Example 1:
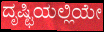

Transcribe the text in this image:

ದೃಷ್ಟಿಯಲ್ಲಿಯೇ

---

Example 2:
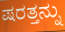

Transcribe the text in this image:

ಷರತ್ತನ್ನು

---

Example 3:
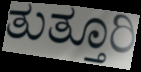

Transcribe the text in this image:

ತುತ್ತೂರಿ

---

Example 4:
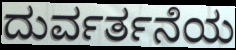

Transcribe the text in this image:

ದುರ್ವರ್ತನೆಯ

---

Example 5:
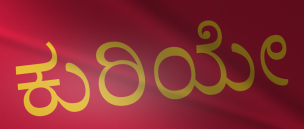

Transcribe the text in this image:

ಕುರಿಯೇ